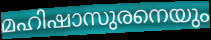
മഹിഷാസുരനെയും